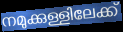
നമുക്കുള്ളിലേക്ക്